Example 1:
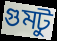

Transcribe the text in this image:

গুমটু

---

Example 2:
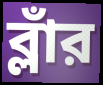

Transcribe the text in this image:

ব্লাঁর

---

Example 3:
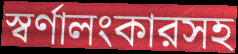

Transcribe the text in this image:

স্বর্ণালংকারসহ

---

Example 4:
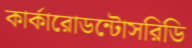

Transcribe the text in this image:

কার্কারোডন্টোসরিডি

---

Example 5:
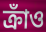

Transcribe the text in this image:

ক্রাঁও